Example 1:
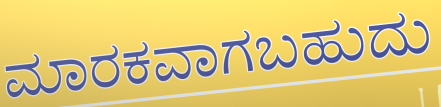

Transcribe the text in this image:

ಮಾರಕವಾಗಬಹುದು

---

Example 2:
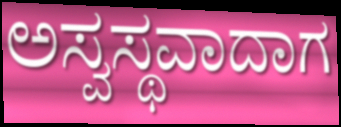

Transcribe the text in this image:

ಅಸ್ವಸ್ಥವಾದಾಗ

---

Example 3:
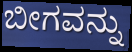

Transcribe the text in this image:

ಬೀಗವನ್ನು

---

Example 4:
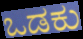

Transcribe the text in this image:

ಒಡಕು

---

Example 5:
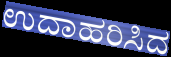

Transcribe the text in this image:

ಉದಾಹರಿಸಿದ